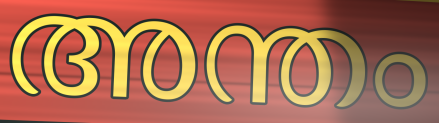
അന്തം